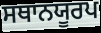
ਸਥਾਨਯੂਰਪ